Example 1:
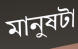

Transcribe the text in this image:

মানুষটা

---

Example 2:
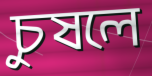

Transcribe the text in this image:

চুষলে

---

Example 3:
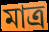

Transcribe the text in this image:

মাত্র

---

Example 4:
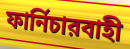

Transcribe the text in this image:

ফার্নিচারবাহী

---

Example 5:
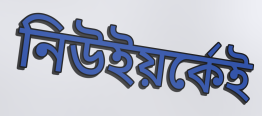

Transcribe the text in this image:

নিউইয়র্কেই